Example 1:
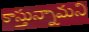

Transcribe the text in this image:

కాస్తున్నామని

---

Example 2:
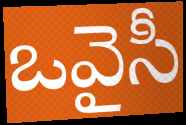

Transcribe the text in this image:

ఒవైసీ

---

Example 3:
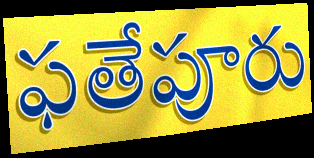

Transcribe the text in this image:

ఫతేపూరు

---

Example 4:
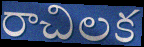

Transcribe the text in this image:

రాచిలక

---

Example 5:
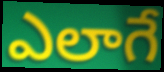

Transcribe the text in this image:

ఎలాగే